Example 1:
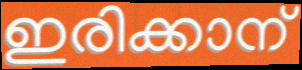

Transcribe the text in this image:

ഇരിക്കാന്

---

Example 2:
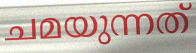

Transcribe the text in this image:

ചമയുന്നത്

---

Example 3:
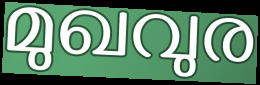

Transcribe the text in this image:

മുഖവുര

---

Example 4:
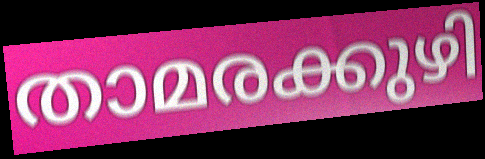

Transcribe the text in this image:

താമരക്കുഴി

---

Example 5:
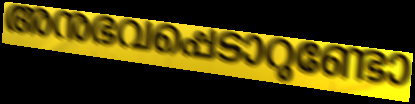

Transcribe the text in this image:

അനുഭവപ്പെടാറുണ്ടോ